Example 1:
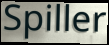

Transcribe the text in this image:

Spiller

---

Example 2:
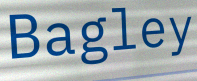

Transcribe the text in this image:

Bagley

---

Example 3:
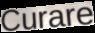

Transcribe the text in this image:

Curare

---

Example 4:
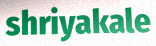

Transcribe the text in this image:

shriyakale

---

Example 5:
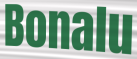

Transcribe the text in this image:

Bonalu